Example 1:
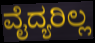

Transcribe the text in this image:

ವೈದ್ಯರಿಲ್ಲ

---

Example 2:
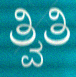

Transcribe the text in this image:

ತ್ವಿತಿ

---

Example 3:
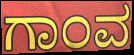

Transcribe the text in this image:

ಗಾಂವ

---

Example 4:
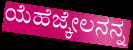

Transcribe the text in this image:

ಯೆಹೆಜ್ಕೇಲನನ್ನ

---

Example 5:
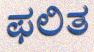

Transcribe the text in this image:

ಫಲಿತ